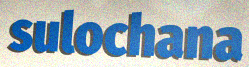
sulochana